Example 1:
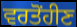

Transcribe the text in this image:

ਵਰਤੋਂਹੀਣ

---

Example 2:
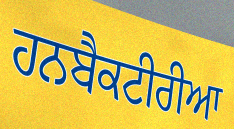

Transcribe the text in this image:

ਹਨਬੈਕਟੀਰੀਆ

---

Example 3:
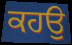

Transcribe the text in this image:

ਕਹਉ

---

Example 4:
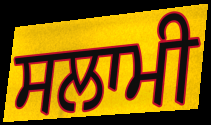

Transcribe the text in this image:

ਸਲਾਮੀ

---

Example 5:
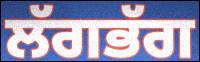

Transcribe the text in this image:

ਲੱਗਭੱਗ